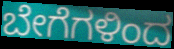
ಬೇಗೆಗಳಿಂದ